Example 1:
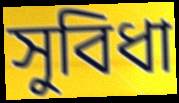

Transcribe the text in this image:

সুবিধা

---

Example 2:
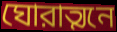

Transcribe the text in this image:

ঘোরাত্মনে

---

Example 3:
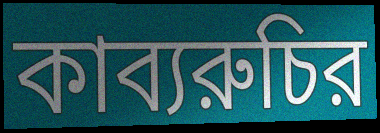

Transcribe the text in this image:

কাব্যরুচির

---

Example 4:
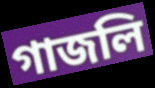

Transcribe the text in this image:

গাজলি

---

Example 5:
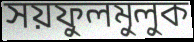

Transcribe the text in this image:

সয়ফুলমুলুক